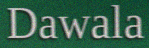
Dawala